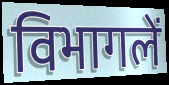
विभागलें